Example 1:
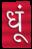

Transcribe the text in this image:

धूं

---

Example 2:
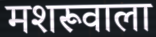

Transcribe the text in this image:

मशरूवाला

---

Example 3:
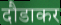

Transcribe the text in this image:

दौडाकर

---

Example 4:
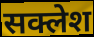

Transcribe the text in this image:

सक्लेश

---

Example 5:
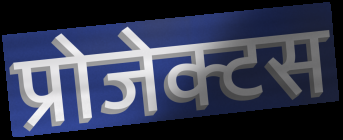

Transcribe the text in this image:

प्रोजेक्टस